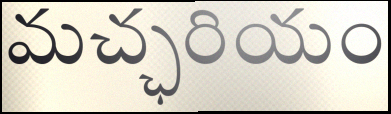
మచ్ఛరియం